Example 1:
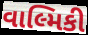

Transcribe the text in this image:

વાલ્મિકી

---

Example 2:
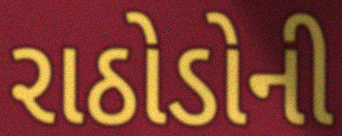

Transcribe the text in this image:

રાઠોડોની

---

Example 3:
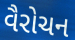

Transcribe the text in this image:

વૈરોચન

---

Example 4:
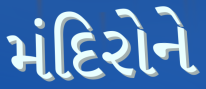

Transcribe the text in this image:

મંદિરોને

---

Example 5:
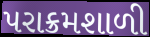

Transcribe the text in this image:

પરાક્રમશાળી